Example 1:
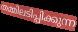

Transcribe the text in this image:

തമ്മിലടിപ്പിക്കുന്ന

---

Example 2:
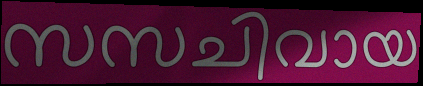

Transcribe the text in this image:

സസചിവായ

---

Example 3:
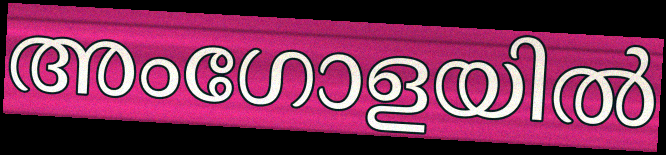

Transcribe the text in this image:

അംഗോളയിൽ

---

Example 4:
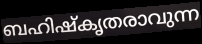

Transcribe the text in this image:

ബഹിഷ്കൃതരാവുന്ന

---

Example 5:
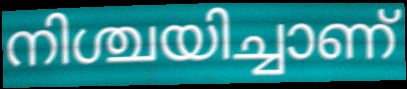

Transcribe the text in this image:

നിശ്ചയിച്ചാണ്